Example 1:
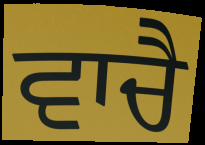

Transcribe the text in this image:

ਵਾਚੈ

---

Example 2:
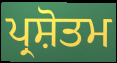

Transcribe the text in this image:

ਪ੍ਰਸ਼ੋਤਮ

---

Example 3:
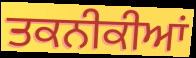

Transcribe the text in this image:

ਤਕਨੀਕੀਆਂ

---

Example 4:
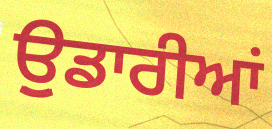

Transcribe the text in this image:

ਉੁਡਾਰੀਆਂ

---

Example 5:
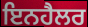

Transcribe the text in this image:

ਇਨਹੈਲਰ